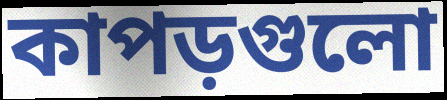
কাপড়গুলো